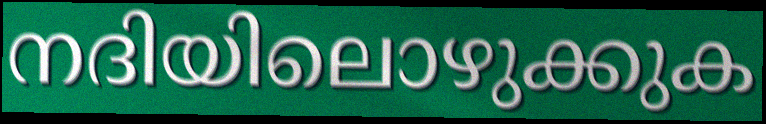
നദിയിലൊഴുക്കുക